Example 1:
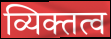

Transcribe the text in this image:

व्यिक्तत्व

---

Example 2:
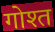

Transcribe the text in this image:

गोश्‍त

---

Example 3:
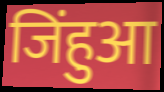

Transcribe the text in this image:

जिंहुआ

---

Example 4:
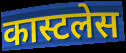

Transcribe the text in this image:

कास्टलेस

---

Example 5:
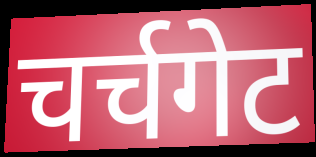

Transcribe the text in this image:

चर्चगेट